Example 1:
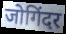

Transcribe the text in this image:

जोगिंदर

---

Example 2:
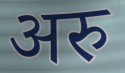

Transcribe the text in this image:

अरु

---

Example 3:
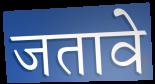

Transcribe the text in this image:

जतावे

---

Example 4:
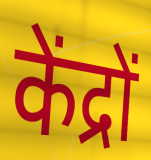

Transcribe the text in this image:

केंद्रों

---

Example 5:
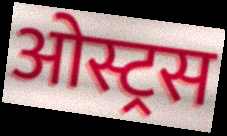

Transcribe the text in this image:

ओस्ट्रस